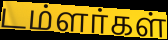
டம்ளர்கள்